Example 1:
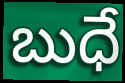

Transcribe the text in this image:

బుధే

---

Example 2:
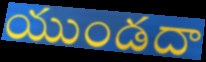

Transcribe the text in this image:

యుండదా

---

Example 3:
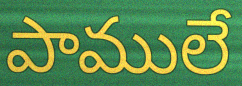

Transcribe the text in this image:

పాములే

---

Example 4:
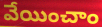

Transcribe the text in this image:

వేయించాం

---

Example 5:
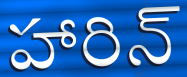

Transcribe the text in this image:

హారిన్